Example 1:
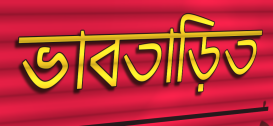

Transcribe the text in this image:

ভাবতাড়িত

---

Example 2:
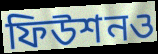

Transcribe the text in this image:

ফিউশনও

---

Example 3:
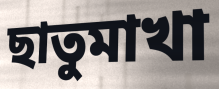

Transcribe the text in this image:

ছাতুমাখা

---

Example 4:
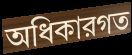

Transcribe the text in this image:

অধিকারগত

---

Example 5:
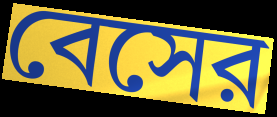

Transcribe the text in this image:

বেসের